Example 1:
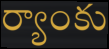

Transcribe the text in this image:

ర్యాంకు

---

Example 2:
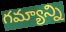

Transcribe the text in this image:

గమ్యాన్ని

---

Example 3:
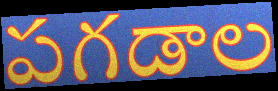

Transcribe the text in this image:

పగడాల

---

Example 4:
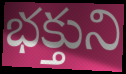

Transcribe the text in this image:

భక్తుని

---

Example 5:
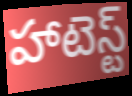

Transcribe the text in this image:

హాటెస్ట్